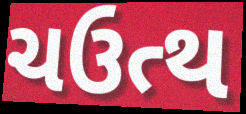
ચઉત્થ